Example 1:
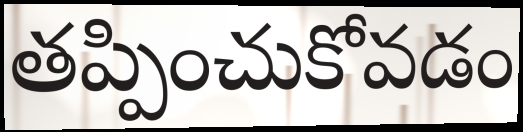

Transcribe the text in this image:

తప్పించుకోవడం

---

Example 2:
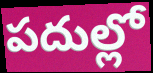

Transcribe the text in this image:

పదుల్లో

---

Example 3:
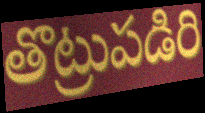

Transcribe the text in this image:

తొట్రుపడిరి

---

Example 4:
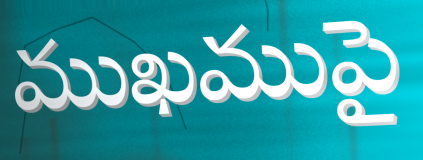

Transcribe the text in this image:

ముఖముపై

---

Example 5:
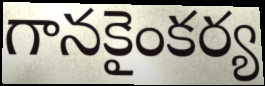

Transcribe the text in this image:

గానకైంకర్య